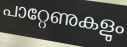
പാറ്റേണുകളും